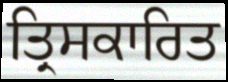
ਤ੍ਰਿਸਕਾਰਿਤ